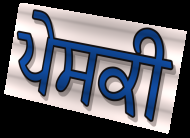
ਪੇਸਕੀ